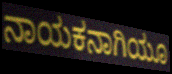
ನಾಯಕನಾಗಿಯೂ